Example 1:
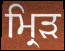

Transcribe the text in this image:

ਮ੍ਰਿੜ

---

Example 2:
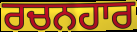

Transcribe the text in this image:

ਰਚਨਹਾਰ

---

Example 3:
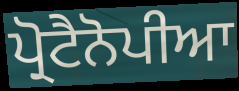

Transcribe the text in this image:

ਪ੍ਰੋਟੈਨੋਪੀਆ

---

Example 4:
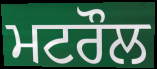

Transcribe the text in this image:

ਮਟਰੌਲ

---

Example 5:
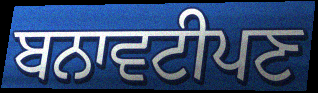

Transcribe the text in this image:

ਬਨਾਵਟੀਪਣ